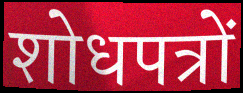
शोधपत्रों